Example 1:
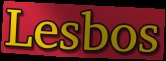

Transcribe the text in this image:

Lesbos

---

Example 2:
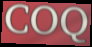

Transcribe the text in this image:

COQ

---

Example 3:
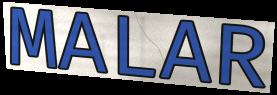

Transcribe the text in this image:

MALAR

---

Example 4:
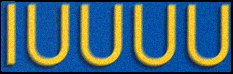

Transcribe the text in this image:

IUUUU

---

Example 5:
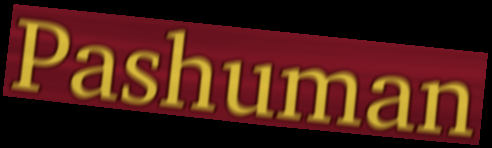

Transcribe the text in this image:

Pashuman